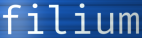
filium